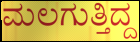
ಮಲಗುತ್ತಿದ್ದ